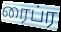
ரைப்ர